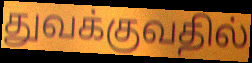
துவக்குவதில்